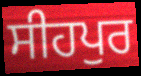
ਸੀਹਪੁਰ